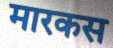
मारकस